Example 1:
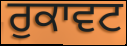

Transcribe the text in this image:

ਰੁਕਾਵਟ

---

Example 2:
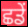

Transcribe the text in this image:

ਛਡੇਂ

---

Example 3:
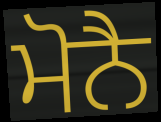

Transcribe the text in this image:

ਮੋਨੈ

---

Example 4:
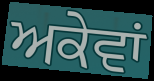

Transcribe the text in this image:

ਅਕੇਵਾਂ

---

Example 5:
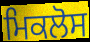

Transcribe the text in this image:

ਮਿਕਲੋਸ